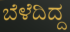
ಬೆಳೆದಿದ್ದ